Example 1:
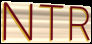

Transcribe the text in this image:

NTR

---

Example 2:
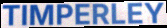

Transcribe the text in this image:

TIMPERLEY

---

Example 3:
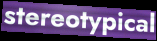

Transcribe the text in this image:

stereotypical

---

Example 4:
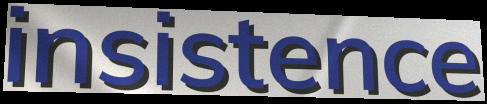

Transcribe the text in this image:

insistence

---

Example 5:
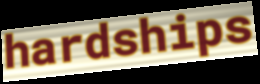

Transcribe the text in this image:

hardships